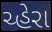
ચ્હેરા